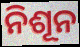
ନିଶୂନ